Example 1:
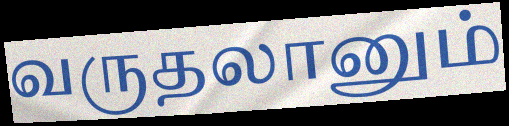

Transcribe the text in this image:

வருதலானும்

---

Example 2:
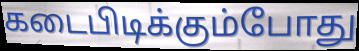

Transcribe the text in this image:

கடைபிடிக்கும்போது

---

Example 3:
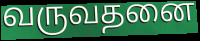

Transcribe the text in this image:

வருவதனை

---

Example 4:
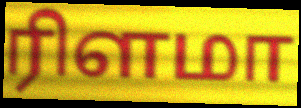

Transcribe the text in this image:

ரிளமா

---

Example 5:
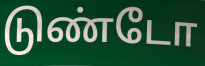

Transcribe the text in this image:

டுண்டோ